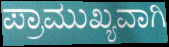
ಪ್ರಾಮುಖ್ಯವಾಗಿ